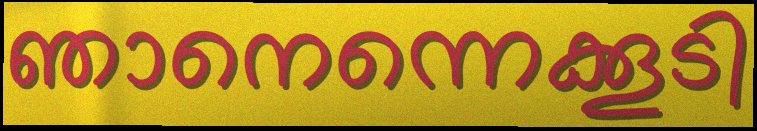
ഞാനെന്നെക്കൂടി